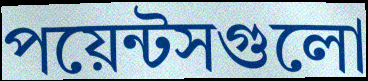
পয়েন্টসগুলো